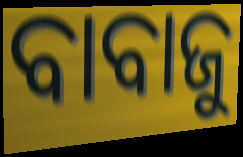
ବାବାଜୁ